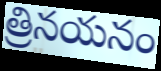
త్రినయనం